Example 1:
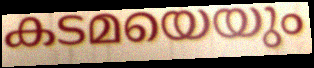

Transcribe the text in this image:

കടമയെയും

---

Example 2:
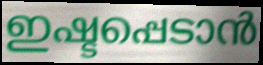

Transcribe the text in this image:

ഇഷ്ടപ്പെടാൻ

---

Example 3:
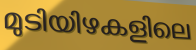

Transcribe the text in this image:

മുടിയിഴകളിലെ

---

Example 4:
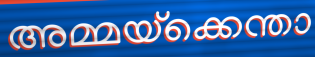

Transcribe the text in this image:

അമ്മയ്‌ക്കെന്താ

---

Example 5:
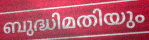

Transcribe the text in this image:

ബുദ്ധിമതിയും